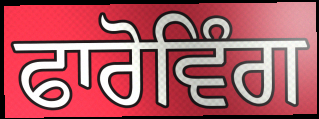
ਫਾਰੋਵਿੰਗ